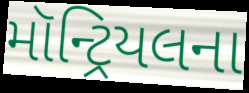
મૉન્ટ્રિયલના